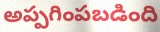
అప్పగింపబడింది